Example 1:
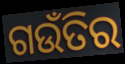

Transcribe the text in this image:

ଗଉଁତିର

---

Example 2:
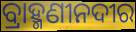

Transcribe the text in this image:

ବ୍ରାହ୍ମଣୀନଦୀର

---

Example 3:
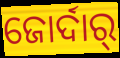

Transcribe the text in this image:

ଜୋର୍ଦାର୍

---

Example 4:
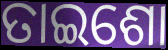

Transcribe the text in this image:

ତାଇଶୋ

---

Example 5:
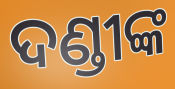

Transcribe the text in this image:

ଦଣ୍ଡୀଙ୍କ